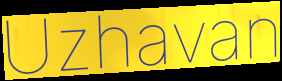
Uzhavan